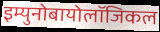
इम्युनोबायोलॉजिकल